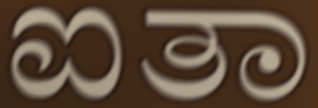
ಐತಾ